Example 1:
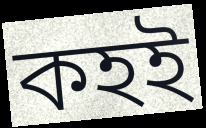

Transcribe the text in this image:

কহই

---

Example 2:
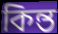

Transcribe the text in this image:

কিন্ত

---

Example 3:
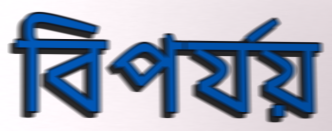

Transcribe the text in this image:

বিপর্যয়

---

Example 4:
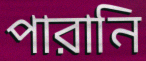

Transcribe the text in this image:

পারানি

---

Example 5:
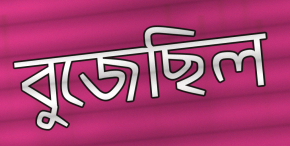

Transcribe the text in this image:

বুজেছিল